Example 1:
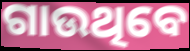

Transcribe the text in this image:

ଗାଉଥିବେ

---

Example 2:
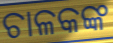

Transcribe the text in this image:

ଚାଳକଙ୍କ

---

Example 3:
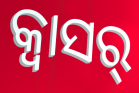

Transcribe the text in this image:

କ୍ୱାସର୍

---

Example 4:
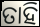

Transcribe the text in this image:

ତାହି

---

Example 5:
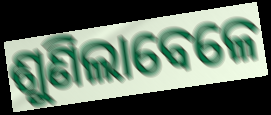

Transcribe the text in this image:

ଶୁଣିଲାବେଳେ